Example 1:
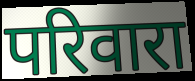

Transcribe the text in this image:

परिवारा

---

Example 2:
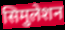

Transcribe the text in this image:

सिमुलेशन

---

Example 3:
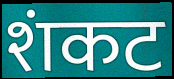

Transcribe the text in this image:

शंकट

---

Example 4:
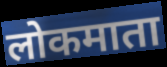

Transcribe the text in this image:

लोकमाता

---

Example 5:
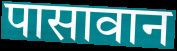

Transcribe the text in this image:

पासावान